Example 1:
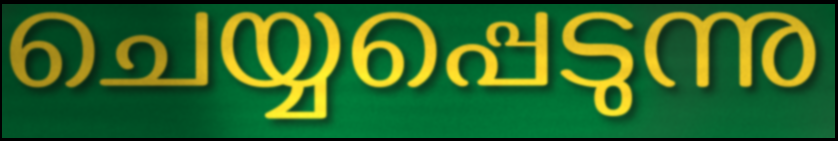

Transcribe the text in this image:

ചെയ്യപ്പെടുന്നു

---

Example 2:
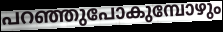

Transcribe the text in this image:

പറഞ്ഞുപോകുമ്പോഴും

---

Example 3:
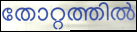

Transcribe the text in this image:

തോറ്റത്തിൽ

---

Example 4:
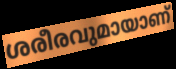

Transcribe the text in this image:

ശരീരവുമായാണ്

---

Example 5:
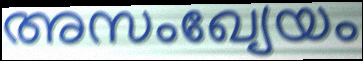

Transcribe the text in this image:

അസംഖ്യേയം